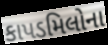
કાપડમિલોના